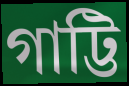
গাট্টি